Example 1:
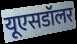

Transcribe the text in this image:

यूएसडॉलर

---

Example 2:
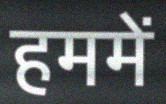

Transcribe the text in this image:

हममें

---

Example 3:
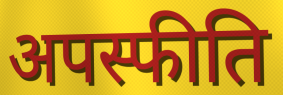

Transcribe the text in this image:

अपस्फीति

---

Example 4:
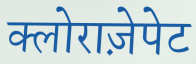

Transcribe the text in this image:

क्लोराज़ेपेट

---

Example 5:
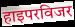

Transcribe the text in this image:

हाइपरविजर